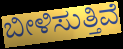
ಬೀಳಿಸುತ್ತಿವೆ